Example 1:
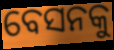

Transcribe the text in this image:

ବେସନକୁ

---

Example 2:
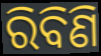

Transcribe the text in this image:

ରିବିଣି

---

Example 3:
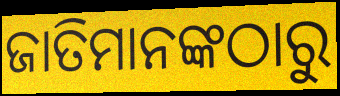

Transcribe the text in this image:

ଜାତିମାନଙ୍କଠାରୁ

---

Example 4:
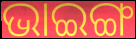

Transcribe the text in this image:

ଭାଇଙ୍ଗ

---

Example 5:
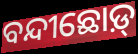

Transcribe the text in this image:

ବନ୍ଦୀଛୋଡ଼୍